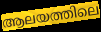
ആലയത്തിലെ